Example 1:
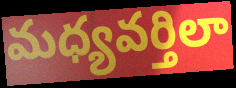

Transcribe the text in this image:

మధ్యవర్తిలా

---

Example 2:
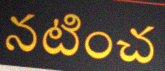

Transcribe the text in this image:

నటించ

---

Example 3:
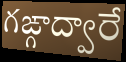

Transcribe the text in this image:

గఙ్గాద్వారే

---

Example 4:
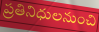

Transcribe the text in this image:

ప్రతినిధులనుంచి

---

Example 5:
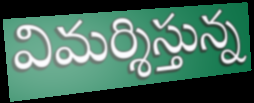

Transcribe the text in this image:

విమర్శిస్తున్న